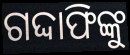
ଗଦ୍ଦାଫିଙ୍କୁ